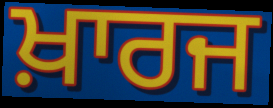
ਖ਼ਾਰਜ